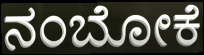
ನಂಬೋಕೆ